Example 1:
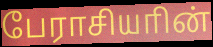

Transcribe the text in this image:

பேராசியரின்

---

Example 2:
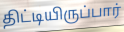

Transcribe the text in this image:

திட்டியிருப்பார்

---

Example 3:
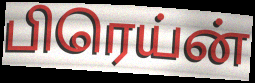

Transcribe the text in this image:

பிரெய்ன்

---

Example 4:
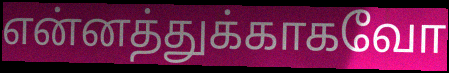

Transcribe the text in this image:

என்னத்துக்காகவோ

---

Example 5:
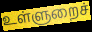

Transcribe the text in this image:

உள்ளுறைச்